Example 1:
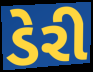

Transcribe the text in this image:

ડેરી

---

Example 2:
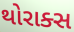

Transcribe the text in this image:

થોરાક્સ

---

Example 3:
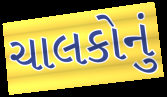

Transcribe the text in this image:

ચાલકોનું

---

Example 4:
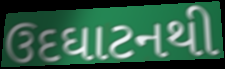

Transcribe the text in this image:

ઉદઘાટનથી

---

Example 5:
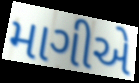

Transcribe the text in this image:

માગીએ